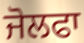
ਜੋਲਫਾ